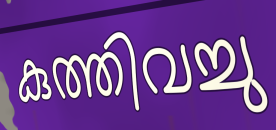
കുത്തിവച്ചു